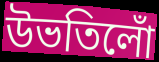
উভতিলোঁ